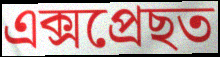
এক্সপ্ৰেছত